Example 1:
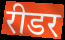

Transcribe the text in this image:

रीडर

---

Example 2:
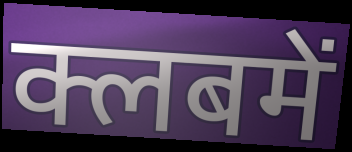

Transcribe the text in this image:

क्लबमें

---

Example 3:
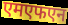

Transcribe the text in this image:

एमएफएन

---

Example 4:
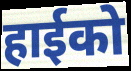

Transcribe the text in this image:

हाईको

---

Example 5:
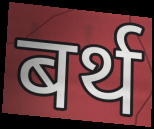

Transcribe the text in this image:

बर्थ